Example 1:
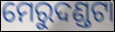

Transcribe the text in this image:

ମେରୁଦଣ୍ଡଟା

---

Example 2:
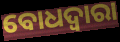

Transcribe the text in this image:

ବୋଧଦ୍ଵାରା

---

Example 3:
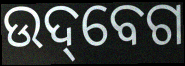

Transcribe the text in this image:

ଉଦ୍‌ବେଗ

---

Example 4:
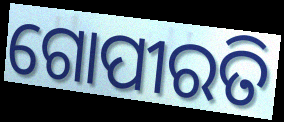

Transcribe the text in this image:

ଗୋପୀରତି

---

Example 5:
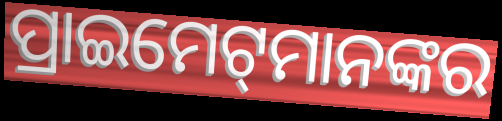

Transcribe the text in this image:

ପ୍ରାଇମେଟ୍‌ମାନଙ୍କର